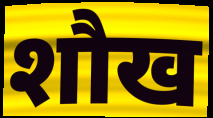
शौख